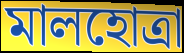
মালহোত্রা